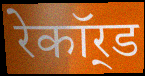
रेकॉर्ड